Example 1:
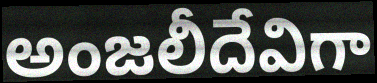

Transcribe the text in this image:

అంజలీదేవిగా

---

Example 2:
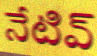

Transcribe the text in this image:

నేటివ్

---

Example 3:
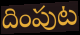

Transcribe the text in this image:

దింపుట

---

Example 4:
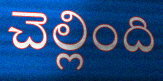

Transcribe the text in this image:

చెల్లింది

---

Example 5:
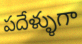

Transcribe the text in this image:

పదేళ్ళుగా